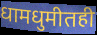
धामधुमीतही